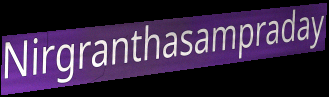
Nirgranthasampraday